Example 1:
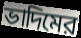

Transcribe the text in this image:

ভাদিমের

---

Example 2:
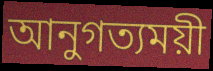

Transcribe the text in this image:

আনুগত্যময়ী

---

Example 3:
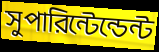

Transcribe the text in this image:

সুপারিন্টেন্ডেন্ট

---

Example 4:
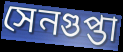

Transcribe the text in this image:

সেনগুপ্তা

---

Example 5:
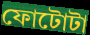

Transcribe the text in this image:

ফোটোটা